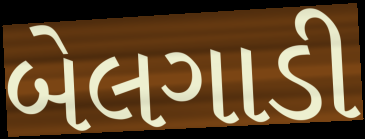
બેલગાડી